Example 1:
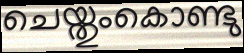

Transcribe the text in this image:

ചെയ്തുംകൊണ്ടു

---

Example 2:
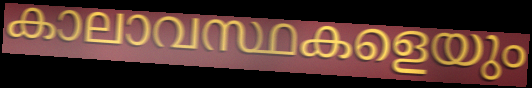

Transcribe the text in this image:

കാലാവസ്ഥകളെയും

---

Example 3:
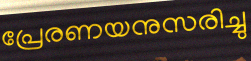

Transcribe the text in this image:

പ്രേരണയനുസരിച്ചു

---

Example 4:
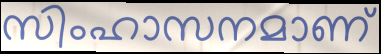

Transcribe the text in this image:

സിംഹാസനമാണ്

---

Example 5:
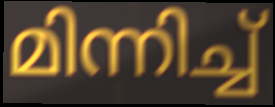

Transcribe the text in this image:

മിന്നിച്ച്